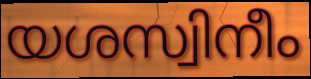
യശസ്വിനീം